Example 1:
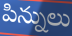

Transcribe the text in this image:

పిన్నులు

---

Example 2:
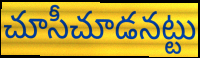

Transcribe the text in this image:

చూసీచూడనట్టు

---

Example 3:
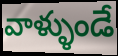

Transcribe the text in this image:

వాళ్ళుండే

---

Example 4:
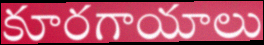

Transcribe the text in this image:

కూరగాయాలు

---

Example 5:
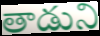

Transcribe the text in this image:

తాడుని